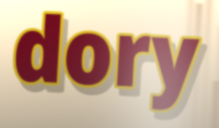
dory